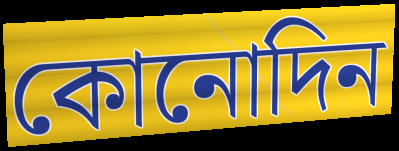
কোনোদিন